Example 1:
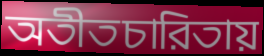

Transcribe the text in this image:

অতীতচারিতায়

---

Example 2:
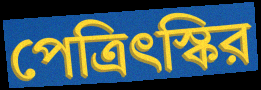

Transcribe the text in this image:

পেত্রিৎস্কির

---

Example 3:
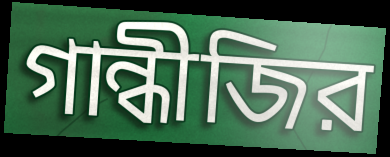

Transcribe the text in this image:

গান্ধীজির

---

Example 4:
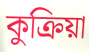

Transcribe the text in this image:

কুক্রিয়া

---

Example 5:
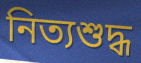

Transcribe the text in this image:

নিত্যশুদ্ধ